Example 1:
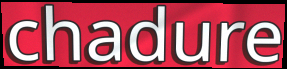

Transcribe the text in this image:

chadure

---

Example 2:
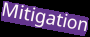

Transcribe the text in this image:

Mitigation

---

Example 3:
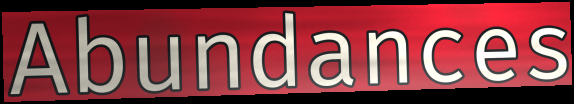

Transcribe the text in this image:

Abundances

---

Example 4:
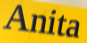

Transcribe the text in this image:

Anita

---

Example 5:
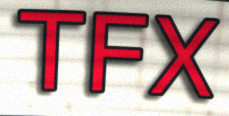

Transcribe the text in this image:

TFX